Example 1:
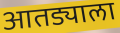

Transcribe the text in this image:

आतड्याला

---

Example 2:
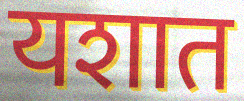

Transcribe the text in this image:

यशात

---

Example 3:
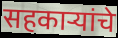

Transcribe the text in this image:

सहकाऱ्यांचे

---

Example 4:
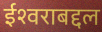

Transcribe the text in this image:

ईश्वराबद्दल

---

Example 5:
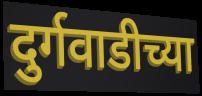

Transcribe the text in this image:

दुर्गवाडीच्या